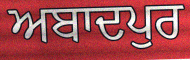
ਅਬਾਦਪੁਰ